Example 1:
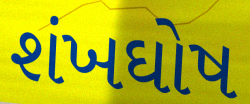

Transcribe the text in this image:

શંખઘોષ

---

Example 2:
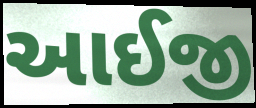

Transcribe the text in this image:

આઈજી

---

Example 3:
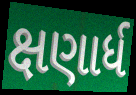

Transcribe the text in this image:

ક્ષણાર્ધ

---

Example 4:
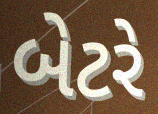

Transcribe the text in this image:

બેટરે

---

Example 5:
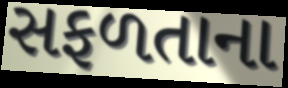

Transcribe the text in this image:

સફળતાના